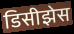
डिसीझेस